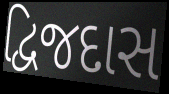
દ્વિજદાસ